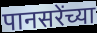
पानसरेंच्या